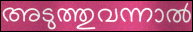
അടുത്തുവന്നാൽ